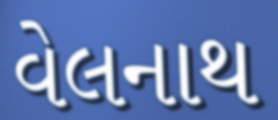
વેલનાથ